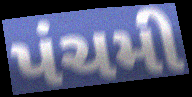
પંચમી